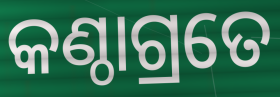
କଣ୍ଠାଗ୍ରତେ